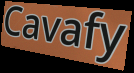
Cavafy